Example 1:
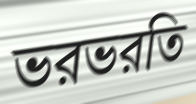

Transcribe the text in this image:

ভরভরতি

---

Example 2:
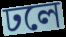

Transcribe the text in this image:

ঢলে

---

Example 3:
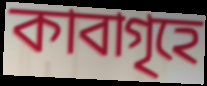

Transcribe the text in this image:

কাবাগৃহে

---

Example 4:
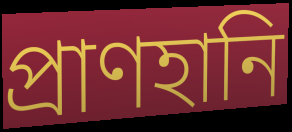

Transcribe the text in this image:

প্রাণহানি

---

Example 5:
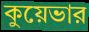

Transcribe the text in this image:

কুয়েভার